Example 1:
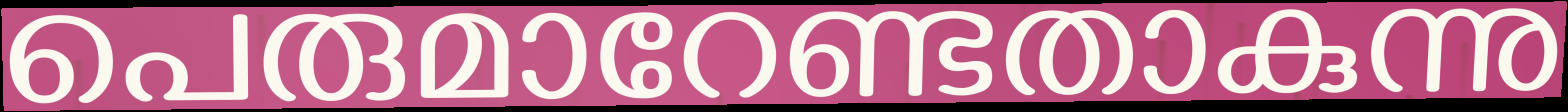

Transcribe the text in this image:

പെരുമാറേണ്ടതാകുന്നു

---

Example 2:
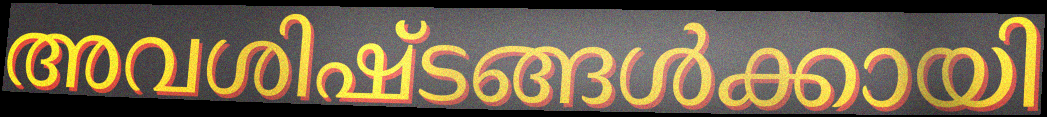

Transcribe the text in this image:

അവശിഷ്ടങ്ങൾക്കായി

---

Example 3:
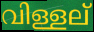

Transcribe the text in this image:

വിള്ളല്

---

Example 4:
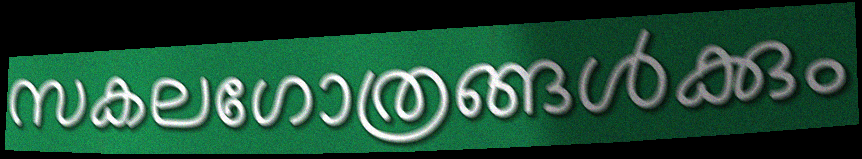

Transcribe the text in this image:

സകലഗോത്രങ്ങൾക്കും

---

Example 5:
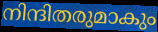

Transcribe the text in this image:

നിന്ദിതരുമാകും